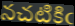
నచటికిఁ